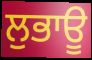
ਲੁਭਾਊ